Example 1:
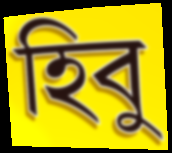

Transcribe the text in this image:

হিবু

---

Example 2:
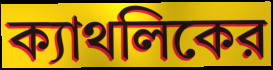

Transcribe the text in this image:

ক্যাথলিকের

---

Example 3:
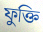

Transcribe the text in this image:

ফুক্তি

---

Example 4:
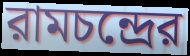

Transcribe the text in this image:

রামচন্দ্রের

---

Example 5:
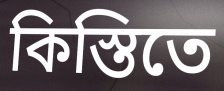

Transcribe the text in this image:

কিস্তিতে